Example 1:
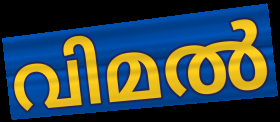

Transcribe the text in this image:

വിമൽ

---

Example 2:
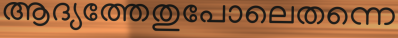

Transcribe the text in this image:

ആദ്യത്തേതുപോലെതന്നെ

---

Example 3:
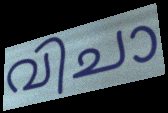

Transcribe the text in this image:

വിചാ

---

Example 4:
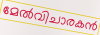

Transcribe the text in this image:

മേൽവിചാരകൻ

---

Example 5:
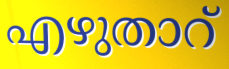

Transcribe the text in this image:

എഴുതാറ്